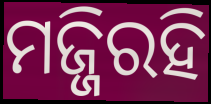
ମଜ୍ଜିରହି